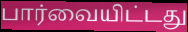
பார்வையிட்டது